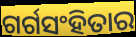
ଗର୍ଗସଂହିତାର